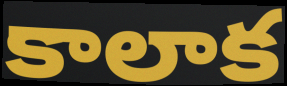
కాలాక